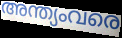
അന്ത്യംവരെ